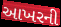
આખરની